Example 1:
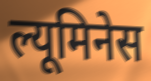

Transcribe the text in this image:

ल्यूमिनेस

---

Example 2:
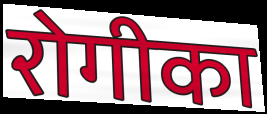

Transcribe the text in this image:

रोगीका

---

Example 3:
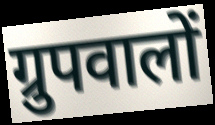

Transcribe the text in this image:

ग्रुपवालों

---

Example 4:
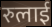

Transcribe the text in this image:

रुलाई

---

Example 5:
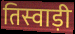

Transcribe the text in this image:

तिस्वाड़ी